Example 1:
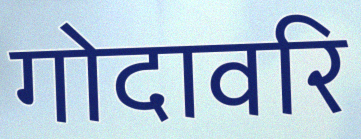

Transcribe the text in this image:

गोदावरि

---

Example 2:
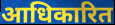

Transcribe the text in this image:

आधिकारित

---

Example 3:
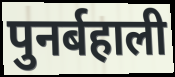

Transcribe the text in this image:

पुनर्बहाली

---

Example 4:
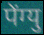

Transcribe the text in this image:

पेंग्यु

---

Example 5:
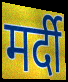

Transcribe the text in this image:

मर्दी